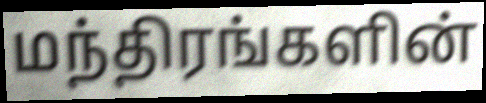
மந்திரங்களின்